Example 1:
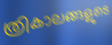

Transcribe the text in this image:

ത്രികാലങ്ങളുടെ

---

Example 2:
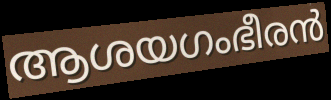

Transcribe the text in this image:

ആശയഗംഭീരൻ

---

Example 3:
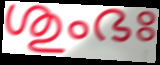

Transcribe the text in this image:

ശുംഭഃ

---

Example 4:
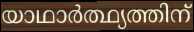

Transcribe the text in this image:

യാഥാർത്ഥ്യത്തിന്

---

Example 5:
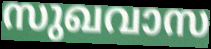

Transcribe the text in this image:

സുഖവാസ